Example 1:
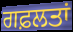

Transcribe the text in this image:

ਗਫ਼ਲਤਾਂ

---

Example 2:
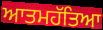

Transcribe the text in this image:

ਆਤਮਹੱਤਿਆ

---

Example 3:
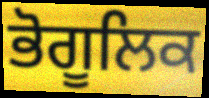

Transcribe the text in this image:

ਭੋਗੂਲਿਕ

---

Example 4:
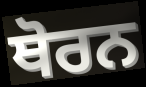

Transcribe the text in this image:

ਥੋਰਨ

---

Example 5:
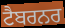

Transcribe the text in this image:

ਟੈਬਰਨਰ